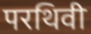
परथिवी